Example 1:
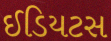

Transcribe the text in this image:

ઈડિયટસ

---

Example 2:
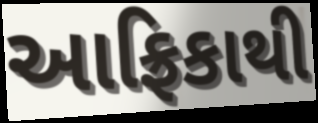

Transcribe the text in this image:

આફ્રિકાથી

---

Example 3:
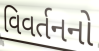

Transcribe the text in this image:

વિવર્તનનો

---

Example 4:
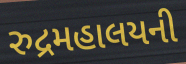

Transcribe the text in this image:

રુદ્રમહાલયની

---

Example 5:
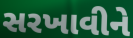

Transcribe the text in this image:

સરખાવીને